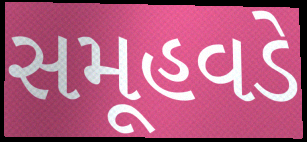
સમૂહવડે